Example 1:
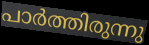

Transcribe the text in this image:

പാർത്തിരുന്നു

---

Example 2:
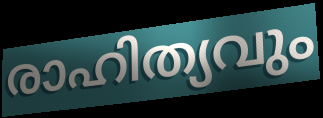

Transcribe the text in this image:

രാഹിത്യവും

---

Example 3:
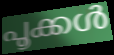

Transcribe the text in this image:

പൂക്കൾ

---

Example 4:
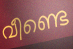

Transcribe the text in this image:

വീണ്ടെ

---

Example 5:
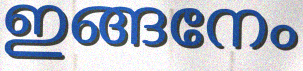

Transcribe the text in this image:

ഇങ്ങനേം